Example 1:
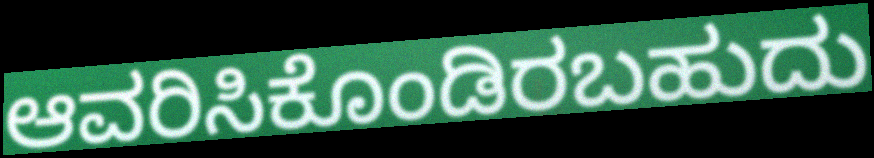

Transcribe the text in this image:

ಆವರಿಸಿಕೊಂಡಿರಬಹುದು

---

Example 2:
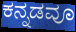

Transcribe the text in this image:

ಕನ್ನಡವೂ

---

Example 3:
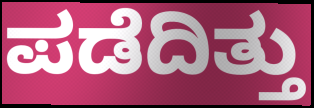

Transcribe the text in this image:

ಪಡೆದಿತ್ತು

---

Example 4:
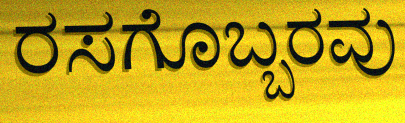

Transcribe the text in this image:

ರಸಗೊಬ್ಬರವು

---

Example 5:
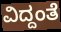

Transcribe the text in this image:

ವಿದ್ದಂತೆ